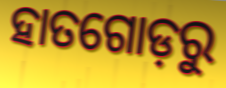
ହାତଗୋଡ଼ରୁ